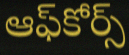
ఆఫ్‌కోర్స్